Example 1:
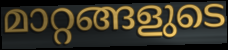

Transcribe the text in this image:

മാറ്റങ്ങളുടെ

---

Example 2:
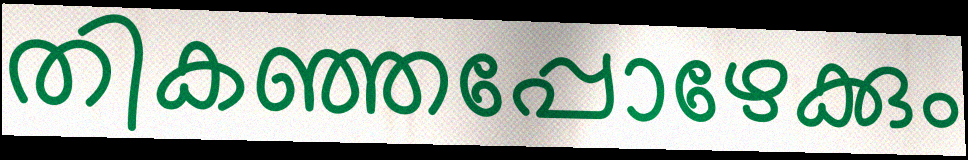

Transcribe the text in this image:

തികഞ്ഞപ്പോഴേക്കും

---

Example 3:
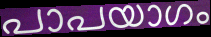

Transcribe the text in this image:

പാപയാഗം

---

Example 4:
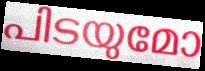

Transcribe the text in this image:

പിടയുമോ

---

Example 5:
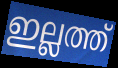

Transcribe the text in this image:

ഇല്ലത്ത്